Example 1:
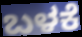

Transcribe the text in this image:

ಬಳಕೆ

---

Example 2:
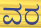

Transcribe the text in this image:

ವರ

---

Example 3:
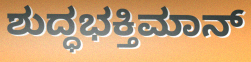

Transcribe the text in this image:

ಶುದ್ಧಭಕ್ತಿಮಾನ್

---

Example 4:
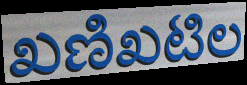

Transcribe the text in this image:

ಖಣಿಖಟಿಲ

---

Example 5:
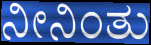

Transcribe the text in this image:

ನೀನಿಂತು